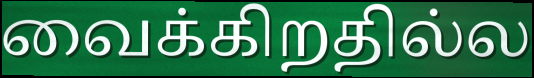
வைக்கிறதில்ல